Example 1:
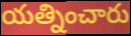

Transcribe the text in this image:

యత్నించారు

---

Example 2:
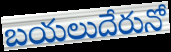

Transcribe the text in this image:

బయలుదేరునో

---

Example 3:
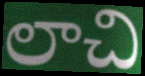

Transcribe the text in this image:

లాచి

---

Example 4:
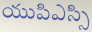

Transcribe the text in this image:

యుపిఎస్సి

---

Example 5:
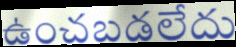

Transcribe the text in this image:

ఉంచబడలేదు